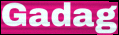
Gadag